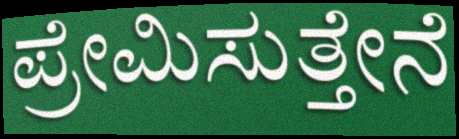
ಪ್ರೇಮಿಸುತ್ತೇನೆ